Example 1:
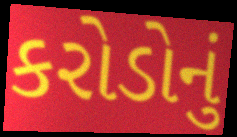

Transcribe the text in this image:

કરોડોનું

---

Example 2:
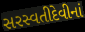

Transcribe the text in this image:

સરસ્વતીદેવીનાં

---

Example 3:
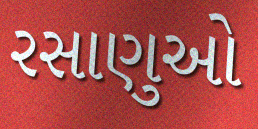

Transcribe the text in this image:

રસાણુઓ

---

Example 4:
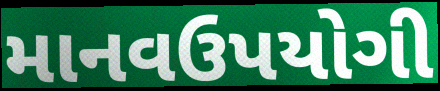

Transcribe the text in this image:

માનવઉપયોગી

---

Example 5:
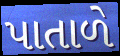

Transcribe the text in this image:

પાતાળે